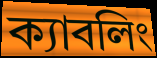
ক্যাবলিং